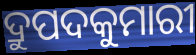
ଦ୍ରୁପଦକୁମାରୀ